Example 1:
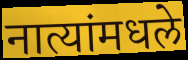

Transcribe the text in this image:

नात्यांमधले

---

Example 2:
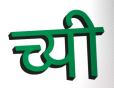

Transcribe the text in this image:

च्यी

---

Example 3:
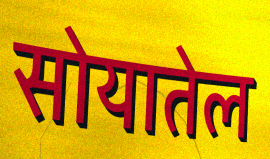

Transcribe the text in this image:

सोयातेल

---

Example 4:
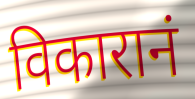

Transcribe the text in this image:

विकारानं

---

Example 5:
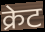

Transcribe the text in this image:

क्रेट